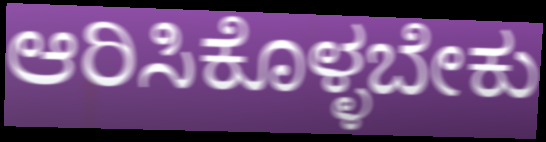
ಆರಿಸಿಕೊಳ್ಳಬೇಕು